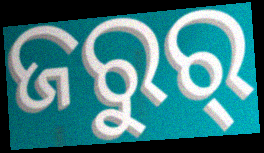
ଜରୁର୍